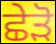
ਛੇੜੋ